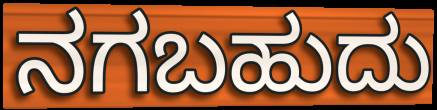
ನಗಬಹುದು